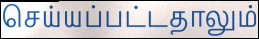
செய்யப்பட்டதாலும்